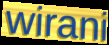
wirani